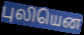
புலியென